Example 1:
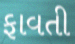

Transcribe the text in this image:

ફાવતી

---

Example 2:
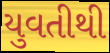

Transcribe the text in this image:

યુવતીથી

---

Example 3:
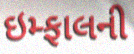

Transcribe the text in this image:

ઇમ્ફાલની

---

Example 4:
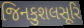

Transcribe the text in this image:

જિનકુશલસૂરિ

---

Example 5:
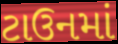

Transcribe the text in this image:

ટાઉનમાં